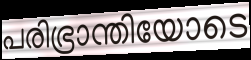
പരിഭ്രാന്തിയോടെ